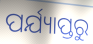
ପର୍ଯ୍ୟାପ୍ତରୁ